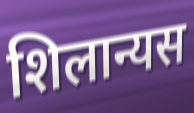
शिलान्यस